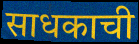
साधकाची